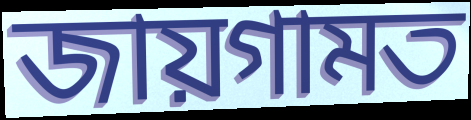
জায়গামত